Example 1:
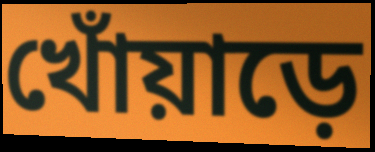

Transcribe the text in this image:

খোঁয়াড়ে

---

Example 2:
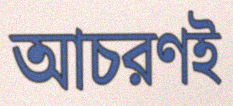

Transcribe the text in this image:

আচরণই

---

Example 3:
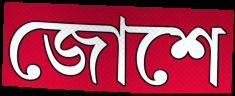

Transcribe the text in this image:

জোশে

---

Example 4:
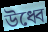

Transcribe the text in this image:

উধ্বে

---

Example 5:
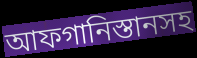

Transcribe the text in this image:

আফগানিস্তানসহ